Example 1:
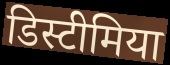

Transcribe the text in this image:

डिस्टीमिया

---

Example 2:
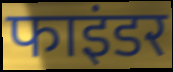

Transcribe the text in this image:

फाइंडर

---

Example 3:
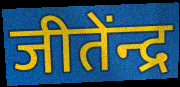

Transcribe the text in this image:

जीतेंन्द्र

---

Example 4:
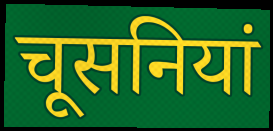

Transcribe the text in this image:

चूसनियां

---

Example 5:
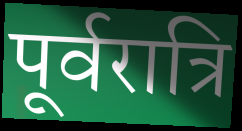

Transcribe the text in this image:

पूर्वरात्रि